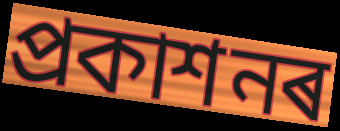
প্ৰকাশনৰ